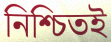
নিশ্চিতই